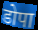
डोपा